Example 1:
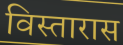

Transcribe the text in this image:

विस्तारास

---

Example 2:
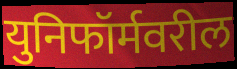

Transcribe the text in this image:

युनिफॉर्मवरील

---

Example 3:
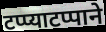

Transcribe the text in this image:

टप्प्याटप्पाने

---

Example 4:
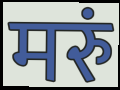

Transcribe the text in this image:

मरुं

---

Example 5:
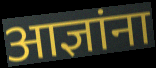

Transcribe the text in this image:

आज्ञांना